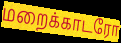
மறைக்காடரோ